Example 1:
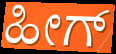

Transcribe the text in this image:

ಹೀಗ್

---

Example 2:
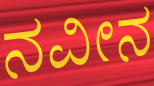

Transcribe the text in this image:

ನವೀನ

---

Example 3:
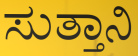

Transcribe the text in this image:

ಸುತ್ತಾನಿ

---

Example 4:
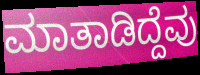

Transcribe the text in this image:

ಮಾತಾಡಿದ್ದೆವು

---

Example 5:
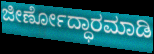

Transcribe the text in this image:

ಜೀರ್ಣೋದ್ಧಾರಮಾಡಿ